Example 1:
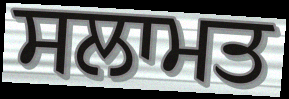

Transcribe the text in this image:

ਸਲਾਮਤ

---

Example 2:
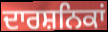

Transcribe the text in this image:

ਦਾਰਸ਼ਨਿਕਾਂ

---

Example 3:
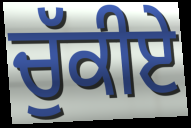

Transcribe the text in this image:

ਚੁੱਕੀਏ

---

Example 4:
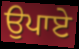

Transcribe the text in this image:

ਉਪਾਏ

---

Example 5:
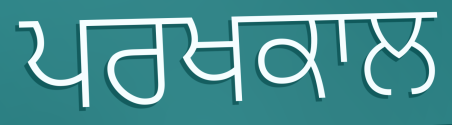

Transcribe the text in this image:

ਪਰਖਕਾਲ